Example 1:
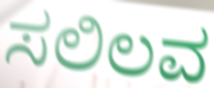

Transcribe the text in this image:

ಸಲಿಲವ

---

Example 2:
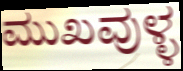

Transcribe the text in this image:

ಮುಖವುಳ್ಳ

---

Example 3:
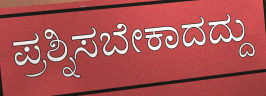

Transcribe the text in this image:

ಪ್ರಶ್ನಿಸಬೇಕಾದದ್ದು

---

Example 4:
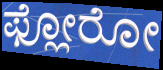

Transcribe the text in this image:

ಫ್ಲೋರೋ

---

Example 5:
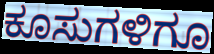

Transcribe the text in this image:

ಕೂಸುಗಳಿಗೂ